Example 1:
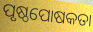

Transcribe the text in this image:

ପୃଷ୍ଠପୋଷକତା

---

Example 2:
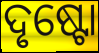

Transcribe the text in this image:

ଦୃଷ୍ଟୋ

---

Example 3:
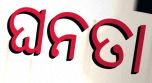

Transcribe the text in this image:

ଘନତା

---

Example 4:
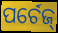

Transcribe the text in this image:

ପର୍ଚେଜ୍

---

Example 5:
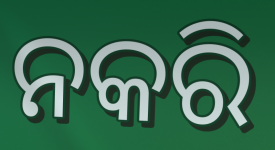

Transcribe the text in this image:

ନକରି